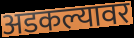
अडकल्यावर